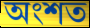
অংশত